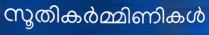
സൂതികർമ്മിണികൾ